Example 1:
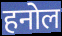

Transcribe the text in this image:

हनोल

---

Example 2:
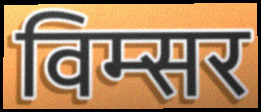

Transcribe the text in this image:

विम्सर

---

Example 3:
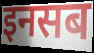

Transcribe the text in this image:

इनसब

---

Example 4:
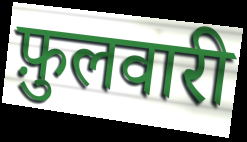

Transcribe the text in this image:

फ़ुलवारी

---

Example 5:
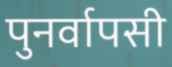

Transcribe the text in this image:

पुनर्वापसी